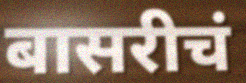
बासरीचं